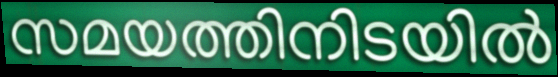
സമയത്തിനിടയിൽ